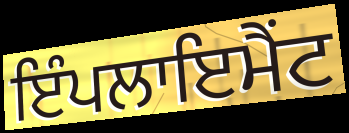
ਇੰਪਲਾਇਮੈਂਟ